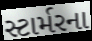
સ્ટાર્મરના